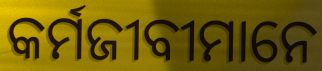
କର୍ମଜୀବୀମାନେ